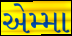
એમ્મા